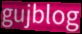
gujblog